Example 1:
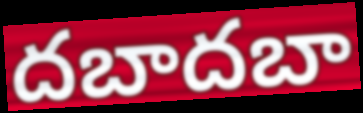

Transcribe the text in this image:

దబాదబా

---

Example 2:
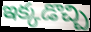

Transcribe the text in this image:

ఇక్కడొచ్చి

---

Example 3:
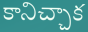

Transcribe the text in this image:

కానిచ్చాక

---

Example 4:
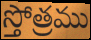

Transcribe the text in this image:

స్తోత్రము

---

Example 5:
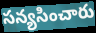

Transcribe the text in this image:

సన్యసించారు